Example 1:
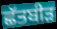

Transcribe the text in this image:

ਛੱਤਬੀੜ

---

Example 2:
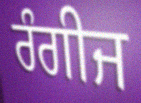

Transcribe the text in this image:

ਰੰਗੀਜ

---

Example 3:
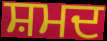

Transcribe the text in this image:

ਸ਼ਮਦ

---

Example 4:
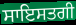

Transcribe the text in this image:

ਸਾਇਸਤਗੀ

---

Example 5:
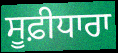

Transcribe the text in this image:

ਸੂਫ਼ੀਧਾਰਾ